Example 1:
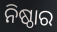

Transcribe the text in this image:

ନିଷ୍ଠାର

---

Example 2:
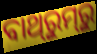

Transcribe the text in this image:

ବାଥ୍‌ରୁମ୍‌ରୁ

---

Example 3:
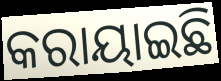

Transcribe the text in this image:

କରାୟାଇଛି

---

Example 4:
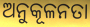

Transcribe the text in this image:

ଅନୁକୂଳନତା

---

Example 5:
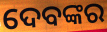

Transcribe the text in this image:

ଦେବଙ୍କର